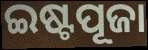
ଇଷ୍ଟପୂଜା